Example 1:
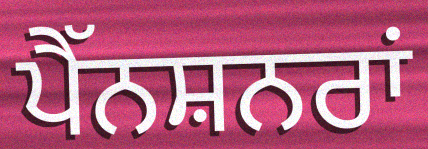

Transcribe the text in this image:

ਪੈੱਨਸ਼ਨਰਾਂ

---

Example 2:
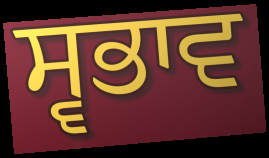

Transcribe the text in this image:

ਸ੍ਵਭਾਵ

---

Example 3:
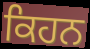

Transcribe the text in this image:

ਕਿਹਨ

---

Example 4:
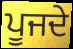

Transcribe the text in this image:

ਪੂਜਦੇ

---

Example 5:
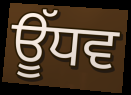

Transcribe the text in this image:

ਊੱਧਵ